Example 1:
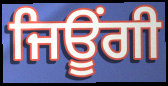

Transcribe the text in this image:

ਜਿਊਂਗੀ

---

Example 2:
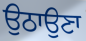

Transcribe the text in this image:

ਉਠਾਉਣਾ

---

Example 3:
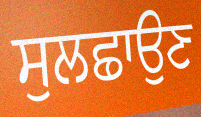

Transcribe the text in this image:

ਸੁਲਛਾਉਣ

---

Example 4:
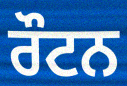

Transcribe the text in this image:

ਰੌਟਨ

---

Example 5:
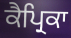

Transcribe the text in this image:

ਕੈਪ੍ਰਿਕਾ